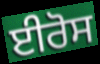
ਈਰੋਸ